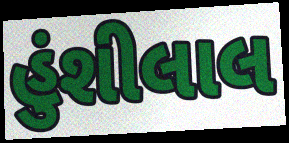
હુંશીલાલ